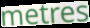
metres